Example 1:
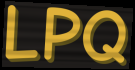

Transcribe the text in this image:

LPQ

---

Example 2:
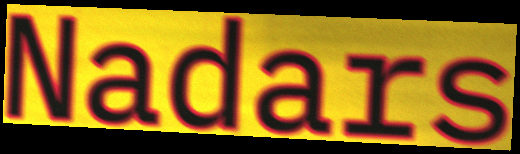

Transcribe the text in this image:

Nadars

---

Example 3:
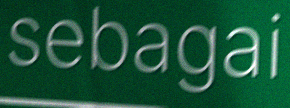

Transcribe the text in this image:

sebagai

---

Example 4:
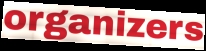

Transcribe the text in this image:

organizers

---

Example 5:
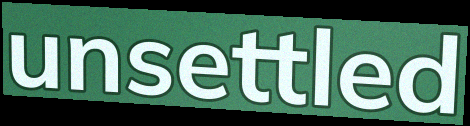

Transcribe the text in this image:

unsettled